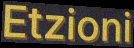
Etzioni